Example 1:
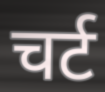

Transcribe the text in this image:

चर्ट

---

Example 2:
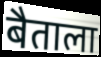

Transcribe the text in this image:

बैताला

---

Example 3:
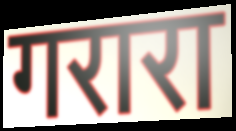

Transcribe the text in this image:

गरारा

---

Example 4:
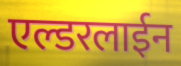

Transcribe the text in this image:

एल्डरलाईन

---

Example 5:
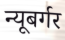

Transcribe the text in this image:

न्यूबर्गर